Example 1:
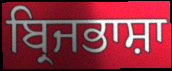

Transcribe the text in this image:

ਬ੍ਰਿਜਭਾਸ਼ਾ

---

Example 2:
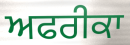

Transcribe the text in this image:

ਅਫਰੀਕਾ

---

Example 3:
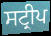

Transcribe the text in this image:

ਸਟ੍ਰੀਪ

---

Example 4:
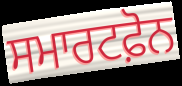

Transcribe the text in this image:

ਸਮਾਰਟਫ਼ੋਨ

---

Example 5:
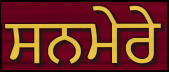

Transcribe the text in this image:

ਸਨਮੇਰੇ